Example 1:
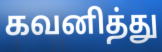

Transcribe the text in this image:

கவனித்து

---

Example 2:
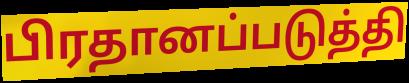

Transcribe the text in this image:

பிரதானப்படுத்தி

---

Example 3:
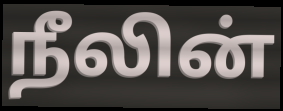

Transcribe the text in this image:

நீலின்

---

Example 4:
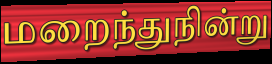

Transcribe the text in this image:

மறைந்துநின்று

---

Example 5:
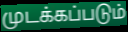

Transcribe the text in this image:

முடக்கப்படும்